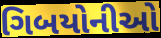
ગિબયોનીઓ